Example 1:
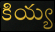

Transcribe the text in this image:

కియ్య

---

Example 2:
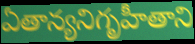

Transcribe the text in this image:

ఏతాన్యనిగృహీతాని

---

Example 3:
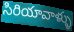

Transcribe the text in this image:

సిరియావాళ్ళు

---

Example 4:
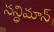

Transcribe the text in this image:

సన్ధిమాన్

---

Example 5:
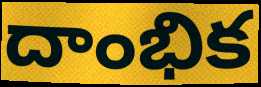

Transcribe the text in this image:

దాంభిక